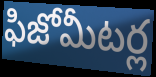
ఫిజోమీటర్ల